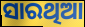
ସାରଥିଆ